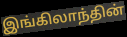
இங்கிலாந்தின்